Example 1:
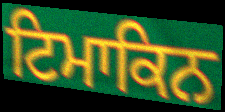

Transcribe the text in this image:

ਟਿਮਾਕਿਨ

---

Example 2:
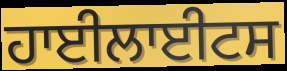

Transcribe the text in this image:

ਹਾਈਲਾਈਟਸ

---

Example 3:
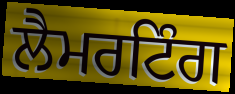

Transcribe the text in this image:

ਲੈਮਰਟਿੰਗ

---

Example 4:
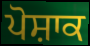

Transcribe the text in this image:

ਪੋਸ਼ਾਕ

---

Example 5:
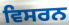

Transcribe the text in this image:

ਵਿਸਰਨ